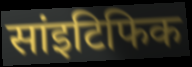
सांइटिफिक